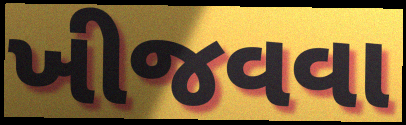
ખીજવવા